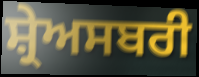
ਸ਼੍ਰੇਅਸਬਰੀ